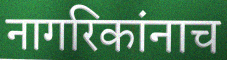
नागरिकांनाच